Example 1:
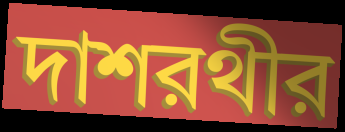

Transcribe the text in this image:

দাশরথীর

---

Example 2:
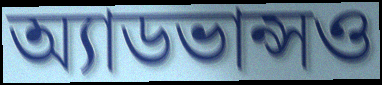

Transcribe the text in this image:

অ্যাডভান্সও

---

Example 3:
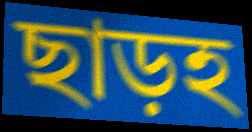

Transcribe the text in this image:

ছাড়হ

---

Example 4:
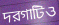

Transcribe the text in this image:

দরগাটিও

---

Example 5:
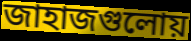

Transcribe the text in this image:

জাহাজগুলোয়